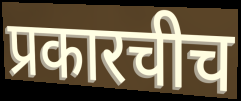
प्रकारचीच